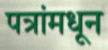
पत्रांमधून